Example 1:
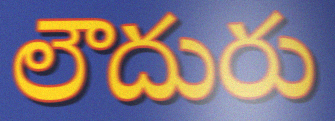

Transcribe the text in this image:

లౌదురు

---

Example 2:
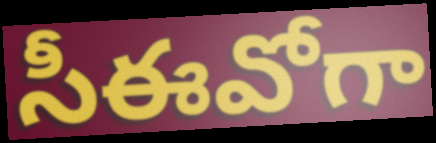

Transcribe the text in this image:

సీఈవోగా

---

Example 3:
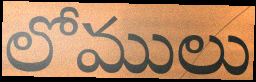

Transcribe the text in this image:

లోములు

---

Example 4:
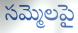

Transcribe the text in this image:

సమ్మెలపై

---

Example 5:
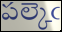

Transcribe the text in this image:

పల్కెఁ